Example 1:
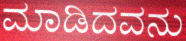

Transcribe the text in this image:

ಮಾಡಿದವನು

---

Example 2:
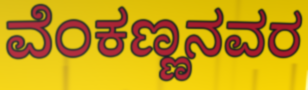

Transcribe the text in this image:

ವೆಂಕಣ್ಣನವರ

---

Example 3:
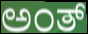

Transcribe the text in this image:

ಅಂತ್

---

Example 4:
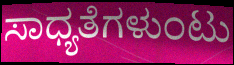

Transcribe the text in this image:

ಸಾಧ್ಯತೆಗಳುಂಟು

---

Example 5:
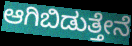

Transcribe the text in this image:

ಆಗಿಬಿಡುತ್ತೇನೆ